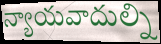
న్యాయవాదుల్ని